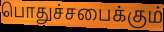
பொதுச்சபைக்கும்